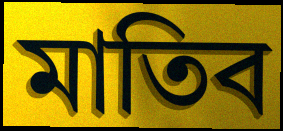
মাতিব